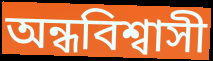
অন্ধবিশ্বাসী